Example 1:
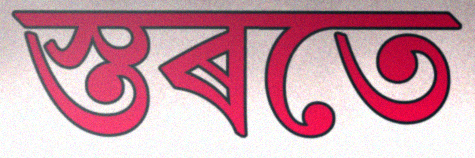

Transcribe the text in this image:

স্তৰতে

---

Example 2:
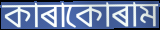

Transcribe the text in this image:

কাৰাকোৰাম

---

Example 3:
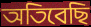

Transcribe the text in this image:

অতিবেছি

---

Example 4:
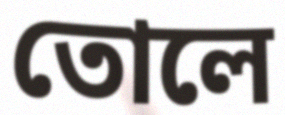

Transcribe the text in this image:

তোলে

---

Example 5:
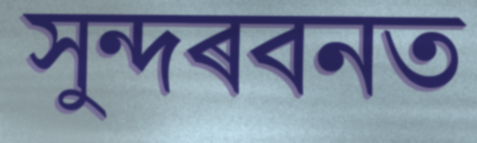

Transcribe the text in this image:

সুন্দৰবনত